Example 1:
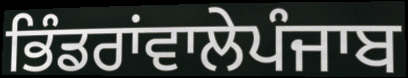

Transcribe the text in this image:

ਭਿੰਡਰਾਂਵਾਲੇਪੰਜਾਬ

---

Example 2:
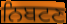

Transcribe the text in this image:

ਨਿਬਟਣ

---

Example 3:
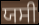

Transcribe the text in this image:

ਯਸੀ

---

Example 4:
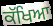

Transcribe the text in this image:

ਕੱਖਿਆ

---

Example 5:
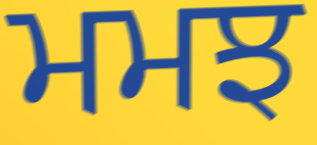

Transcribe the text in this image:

ਮਮਝ